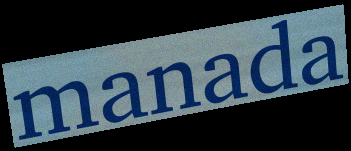
manada